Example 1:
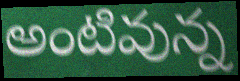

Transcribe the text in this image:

అంటివున్న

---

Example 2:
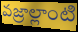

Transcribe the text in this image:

వజ్రాల్లాంటి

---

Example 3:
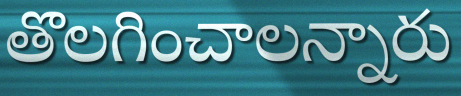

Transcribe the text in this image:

తొలగించాలన్నారు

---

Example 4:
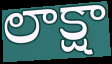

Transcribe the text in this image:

లాక్షా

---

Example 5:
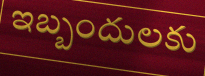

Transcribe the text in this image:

ఇబ్బందులకు